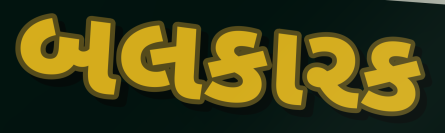
બલકારક